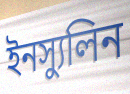
ইনস্যুলিন